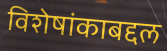
विशेषांकाबद्दल